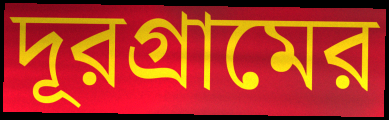
দূরগ্রামের